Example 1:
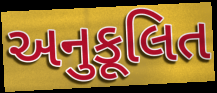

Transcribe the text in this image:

અનુકૂલિત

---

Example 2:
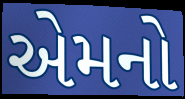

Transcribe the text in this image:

એમનો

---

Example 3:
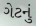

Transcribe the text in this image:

ગેટનું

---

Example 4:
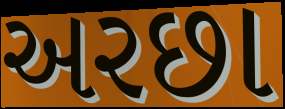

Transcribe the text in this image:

અરછા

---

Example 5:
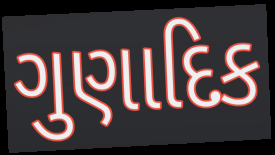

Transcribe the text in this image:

ગુણાદિક